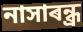
নাসাৰন্ধ্ৰ